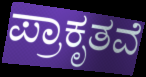
ಪ್ರಾಕೃತವೆ